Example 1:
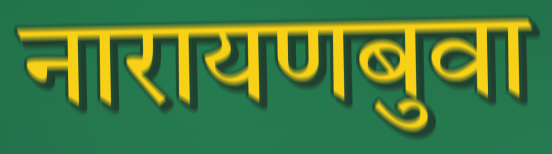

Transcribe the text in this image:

नारायणबुवा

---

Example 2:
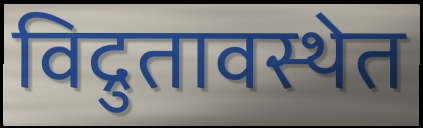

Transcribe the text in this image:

विद्रुतावस्थेत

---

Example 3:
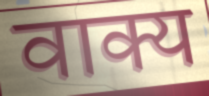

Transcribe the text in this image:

वाक्य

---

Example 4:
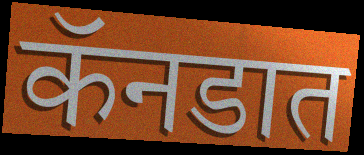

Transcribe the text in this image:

कॅनडात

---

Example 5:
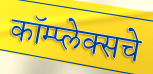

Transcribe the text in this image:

कॉम्प्लेक्सचे